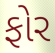
ફોર